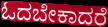
ಓದಬೇಕಾದರೆ